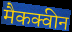
मैकक्वीन